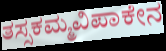
ತಸ್ಸಕಮ್ಮವಿಪಾಕೇನ